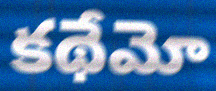
కథేమో